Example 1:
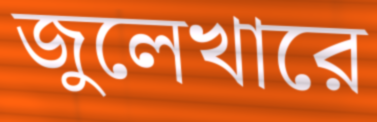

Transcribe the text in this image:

জুলেখারে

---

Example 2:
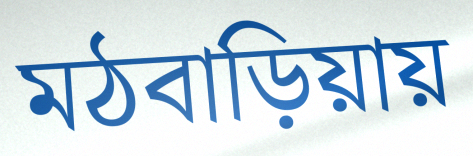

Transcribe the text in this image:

মঠবাড়িয়ায়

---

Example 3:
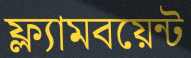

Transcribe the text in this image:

ফ্ল্যামবয়েন্ট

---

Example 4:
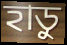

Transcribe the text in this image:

হাডু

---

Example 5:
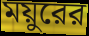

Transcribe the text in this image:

ময়ুরের